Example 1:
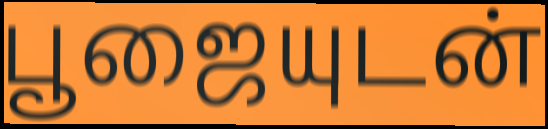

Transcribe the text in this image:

பூஜையுடன்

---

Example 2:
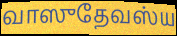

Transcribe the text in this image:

வாஸுதேவஸ்ய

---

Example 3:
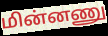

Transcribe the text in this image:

மின்னணு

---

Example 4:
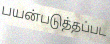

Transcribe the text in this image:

பயன்படுத்தப்பட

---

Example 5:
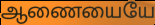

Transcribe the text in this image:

ஆணையையே